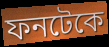
ফনটেকে